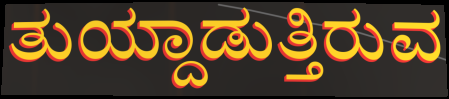
ತುಯ್ದಾಡುತ್ತಿರುವ